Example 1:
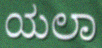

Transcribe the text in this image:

ಯಲಾ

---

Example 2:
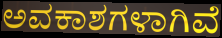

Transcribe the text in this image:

ಅವಕಾಶಗಳಾಗಿವೆ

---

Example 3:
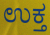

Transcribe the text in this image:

ಉಕ್ತ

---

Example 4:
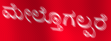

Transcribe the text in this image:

ಮೇಲ್ತೊಗಲ್ಪರೆ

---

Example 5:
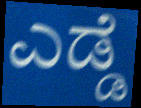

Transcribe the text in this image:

ಎಡ್ಡೆ